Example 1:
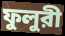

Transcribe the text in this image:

ফুলুরী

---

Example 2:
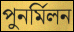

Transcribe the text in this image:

পুনর্মিলন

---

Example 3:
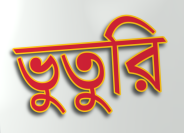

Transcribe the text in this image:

ভুতুরি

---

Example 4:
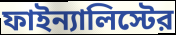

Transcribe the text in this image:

ফাইন্যালিস্টের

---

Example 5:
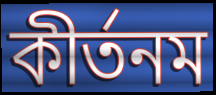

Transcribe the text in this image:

কীর্তনম